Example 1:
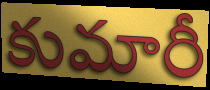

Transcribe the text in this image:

కుమారీ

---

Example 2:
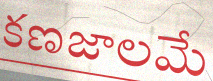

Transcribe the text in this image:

కణజాలమే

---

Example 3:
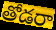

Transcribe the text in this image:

తోడరా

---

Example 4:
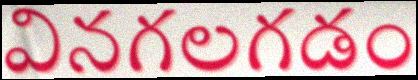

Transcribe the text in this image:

వినగలగడం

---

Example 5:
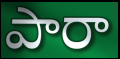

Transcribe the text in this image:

పారా